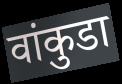
वांकुडा